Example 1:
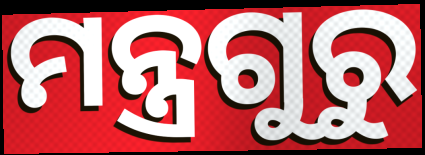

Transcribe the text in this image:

ମନ୍ତ୍ରଗୁରୁ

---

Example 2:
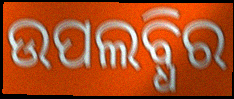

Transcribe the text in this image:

ଉପଲବ୍ଧିର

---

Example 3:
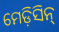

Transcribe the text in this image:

ମେଡ଼ିସିନ୍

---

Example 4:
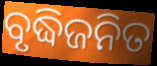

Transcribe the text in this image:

ବୃଦ୍ଧିଜନିତ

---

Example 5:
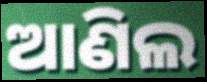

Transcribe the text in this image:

ଆଣିଲ